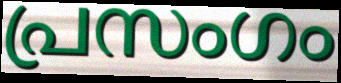
പ്രസംഗം